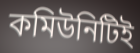
কমিউনিটিই